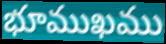
భూముఖము